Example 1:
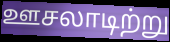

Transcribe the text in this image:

ஊசலாடிற்று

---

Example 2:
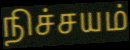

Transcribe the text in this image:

நிச்சயம்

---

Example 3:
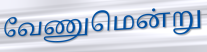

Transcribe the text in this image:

வேணுமென்று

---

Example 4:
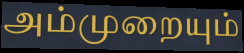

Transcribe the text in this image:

அம்முறையும்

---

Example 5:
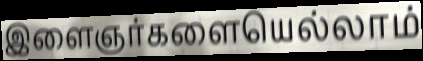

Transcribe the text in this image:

இளைஞர்களையெல்லாம்